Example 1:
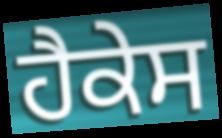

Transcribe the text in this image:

ਹੈਕੇਸ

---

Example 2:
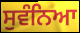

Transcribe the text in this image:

ਸੁਵੰਨਿਆ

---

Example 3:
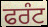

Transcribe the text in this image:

ਫਰੰਟ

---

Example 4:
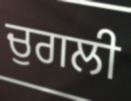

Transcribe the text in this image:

ਚੁਗਲੀ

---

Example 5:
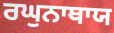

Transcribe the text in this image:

ਰਘੁਨਾਥਾਯ